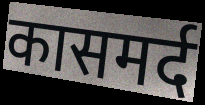
कासमर्द